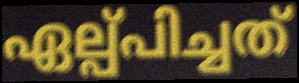
ഏല്പ്പിച്ചത്